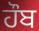
ਹੌਬ